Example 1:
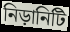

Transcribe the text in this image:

নিড়ানিটি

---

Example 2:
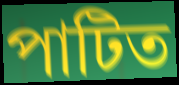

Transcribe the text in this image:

পাটিত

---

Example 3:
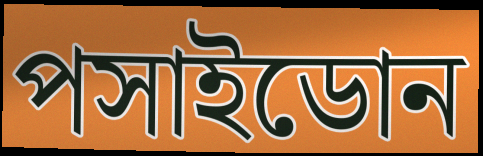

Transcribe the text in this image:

পসাইডোন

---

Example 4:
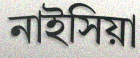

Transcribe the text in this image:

নাইসিয়া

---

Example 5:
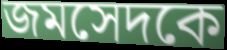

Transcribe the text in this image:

জমসেদকে